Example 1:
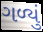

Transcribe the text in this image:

ગળ્યું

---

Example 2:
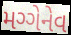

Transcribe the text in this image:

મગ્ગેનેવ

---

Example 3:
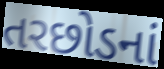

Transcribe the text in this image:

તરછોડનાં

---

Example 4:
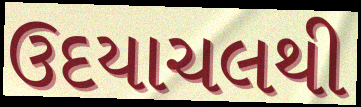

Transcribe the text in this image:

ઉદયાચલથી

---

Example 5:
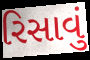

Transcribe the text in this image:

રિસાવું